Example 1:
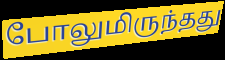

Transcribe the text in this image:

போலுமிருந்தது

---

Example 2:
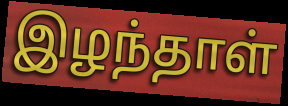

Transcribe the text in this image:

இழந்தாள்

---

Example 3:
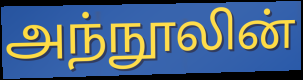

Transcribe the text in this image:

அந்நூலின்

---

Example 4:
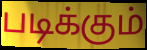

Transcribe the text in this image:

படிக்கும்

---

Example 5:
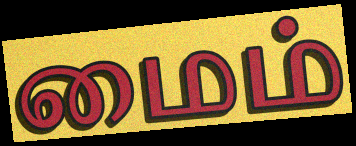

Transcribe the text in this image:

மைம்